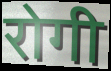
रोगी